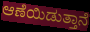
ಆಣೆಯಿಡುತ್ತಾನೆ